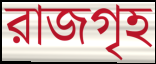
রাজগৃহ